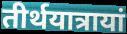
तीर्थयात्रायां